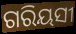
ଗରିୟସୀ